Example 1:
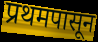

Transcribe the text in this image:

प्रथमपासून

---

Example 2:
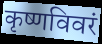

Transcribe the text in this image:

कृष्णविवरं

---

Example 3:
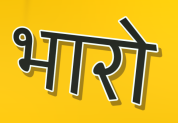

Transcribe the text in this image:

भारो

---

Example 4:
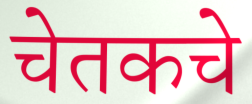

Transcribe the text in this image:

चेतकचे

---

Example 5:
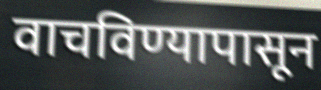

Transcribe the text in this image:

वाचविण्यापासून